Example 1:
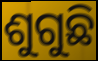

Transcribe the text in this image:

ଶୁଗୁଛି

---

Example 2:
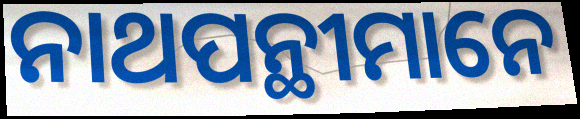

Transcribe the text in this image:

ନାଥପନ୍ଥୀମାନେ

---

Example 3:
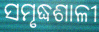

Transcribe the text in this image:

ସମୃଦ୍ଧଶାଳୀ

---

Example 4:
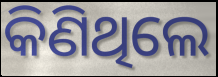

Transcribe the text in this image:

କିଣିଥିଲେ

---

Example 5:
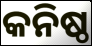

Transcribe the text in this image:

କନିଷ୍ଠ